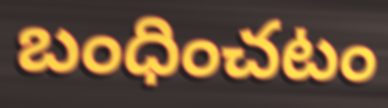
బంధించటం